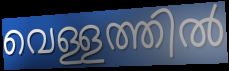
വെള്ളത്തിൽ